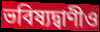
ভবিষ্যদ্বাণীও